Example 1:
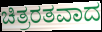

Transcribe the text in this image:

ಚಿತ್ರರತವಾದ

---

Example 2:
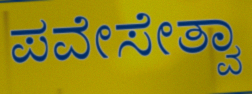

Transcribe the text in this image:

ಪವೇಸೇತ್ವಾ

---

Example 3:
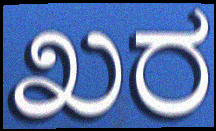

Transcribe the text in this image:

ಖರ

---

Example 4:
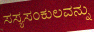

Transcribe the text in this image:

ಸಸ್ಯಸಂಕುಲವನ್ನು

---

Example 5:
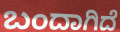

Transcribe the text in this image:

ಬಂದಾಗಿದೆ